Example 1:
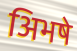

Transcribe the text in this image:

अिभषे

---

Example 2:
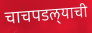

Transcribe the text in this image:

चाचपडल्याची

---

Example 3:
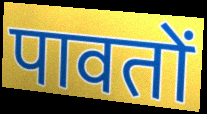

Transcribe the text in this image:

पावतों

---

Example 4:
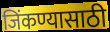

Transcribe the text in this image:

जिंकण्यासाठी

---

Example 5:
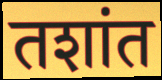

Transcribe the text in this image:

तशांत